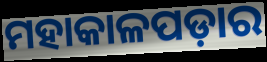
ମହାକାଳପଡ଼ାର